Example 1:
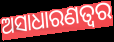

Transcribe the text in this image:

ଅସାଧାରଣତ୍ୱର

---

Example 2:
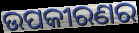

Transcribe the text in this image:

ଉପକୀରଣର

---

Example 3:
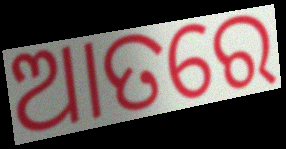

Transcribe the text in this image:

ଆତରେ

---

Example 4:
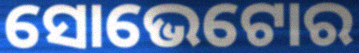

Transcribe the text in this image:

ସୋଭେଟୋର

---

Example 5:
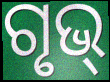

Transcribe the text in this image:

ଗୃଭ୍